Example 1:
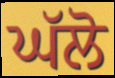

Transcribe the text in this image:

ਘੱਲੋ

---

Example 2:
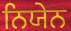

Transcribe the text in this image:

ਨਿਯੇਨ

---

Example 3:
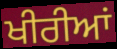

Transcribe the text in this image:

ਖੀਰੀਆਂ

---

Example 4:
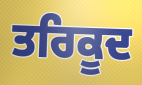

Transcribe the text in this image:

ਤਰਿਕੂਦ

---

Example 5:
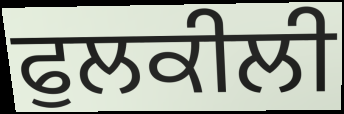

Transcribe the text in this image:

ਫੁਲਕੀਲੀ